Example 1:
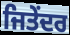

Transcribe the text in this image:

ਜਿਤੇਂਦਰ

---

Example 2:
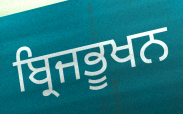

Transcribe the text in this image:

ਬ੍ਰਿਜਭੂਖਨ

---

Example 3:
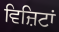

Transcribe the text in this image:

ਵਿਜ਼ਿਟਾਂ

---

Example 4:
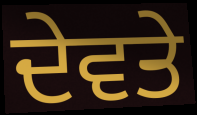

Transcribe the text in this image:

ਦੇਵਤੇ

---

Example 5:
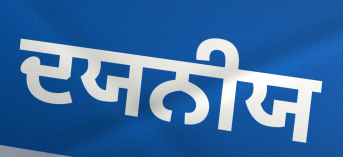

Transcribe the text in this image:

ਦਯਨੀਯ